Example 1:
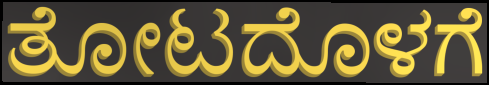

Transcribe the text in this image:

ತೋಟದೊಳಗೆ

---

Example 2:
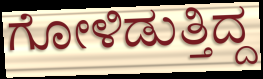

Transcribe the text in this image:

ಗೋಳಿಡುತ್ತಿದ್ದ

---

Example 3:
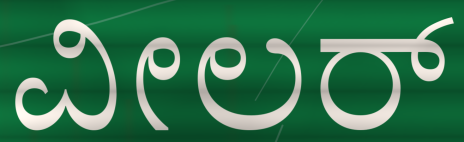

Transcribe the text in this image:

ವೀಲರ್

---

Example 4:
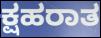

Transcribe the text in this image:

ಕ್ಷಹರಾತ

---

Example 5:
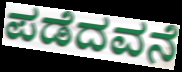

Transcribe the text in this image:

ಪಡೆದವನೆ